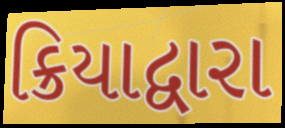
ક્રિયાદ્વારા